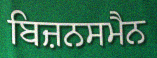
ਬਿਜ਼ਨਸਮੈਨ